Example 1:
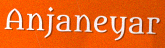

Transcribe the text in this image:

Anjaneyar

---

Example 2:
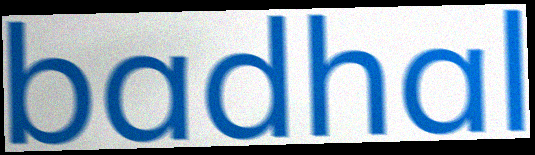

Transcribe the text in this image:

badhal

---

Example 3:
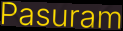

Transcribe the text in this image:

Pasuram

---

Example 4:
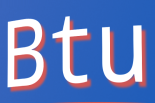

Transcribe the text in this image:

Btu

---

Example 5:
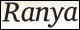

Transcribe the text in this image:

Ranya